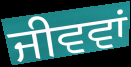
ਜੀਵਵਾਂ